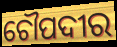
ଚୌପଦୀର